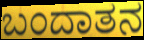
ಬಂದಾತನ